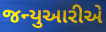
જન્યુઆરીએ